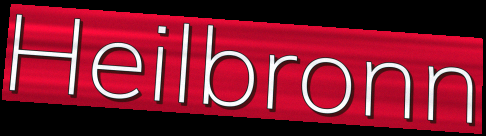
Heilbronn